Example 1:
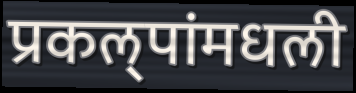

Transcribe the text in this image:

प्रकल्पांमधली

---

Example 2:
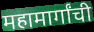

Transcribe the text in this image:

महामार्गांची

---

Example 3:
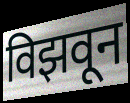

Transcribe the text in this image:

विझवून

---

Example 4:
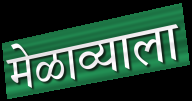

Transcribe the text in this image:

मेळाव्याला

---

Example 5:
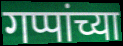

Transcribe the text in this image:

गप्पांच्या